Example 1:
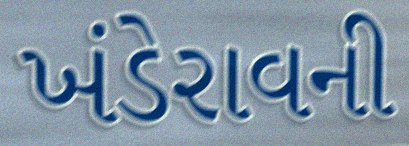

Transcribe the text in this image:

ખંડેરાવની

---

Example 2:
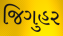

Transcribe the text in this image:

જિગુહર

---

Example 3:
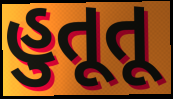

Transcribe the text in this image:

હુતૂતૂ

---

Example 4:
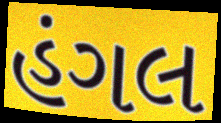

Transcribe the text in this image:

હંગલ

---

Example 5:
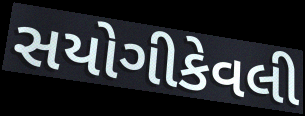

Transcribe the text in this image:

સયોગીકેવલી